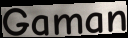
Gaman